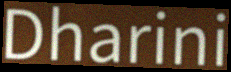
Dharini